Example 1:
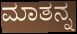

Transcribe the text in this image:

ಮಾತನ್ನ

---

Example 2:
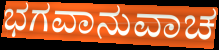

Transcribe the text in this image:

ಭಗವಾನುವಾಚ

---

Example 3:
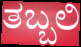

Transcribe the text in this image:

ತಬ್ಬಲಿ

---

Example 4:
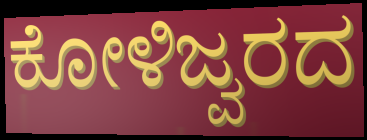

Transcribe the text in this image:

ಕೋಳಿಜ್ವರದ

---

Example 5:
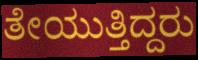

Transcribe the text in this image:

ತೇಯುತ್ತಿದ್ದರು